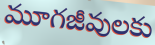
మూగజీవులకు